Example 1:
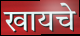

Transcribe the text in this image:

खायचे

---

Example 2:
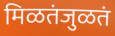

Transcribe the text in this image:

मिळतंजुळतं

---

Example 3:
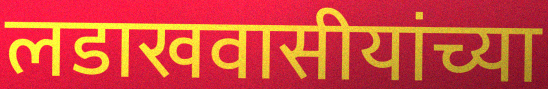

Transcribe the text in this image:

लडाखवासीयांच्या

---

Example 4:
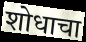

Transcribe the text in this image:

शोधाचा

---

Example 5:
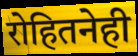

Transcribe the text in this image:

रोहितनेही